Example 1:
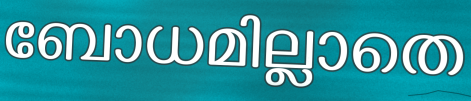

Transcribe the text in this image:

ബോധമില്ലാതെ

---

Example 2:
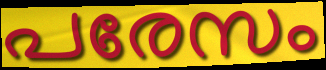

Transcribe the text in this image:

പരേസം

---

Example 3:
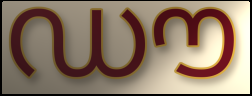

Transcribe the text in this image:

ഡൗ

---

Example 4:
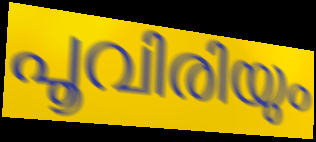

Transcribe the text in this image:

പൂവിരിയും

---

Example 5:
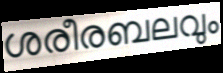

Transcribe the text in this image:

ശരീരബലവും